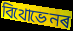
বিথোভেনৰ